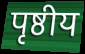
पृष्ठीय